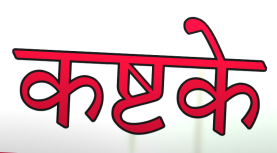
कष्टके